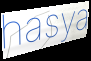
hasya